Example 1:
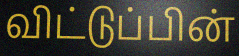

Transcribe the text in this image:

விட்டுப்பின்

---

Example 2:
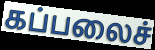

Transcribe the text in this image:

கப்பலைச்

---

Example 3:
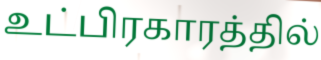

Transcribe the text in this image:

உட்பிரகாரத்தில்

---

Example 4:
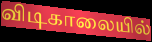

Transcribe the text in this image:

விடிகாலையில்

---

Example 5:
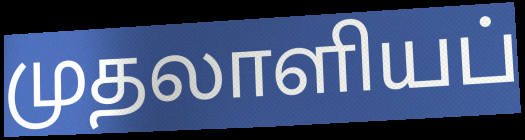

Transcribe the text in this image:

முதலாளியப்